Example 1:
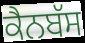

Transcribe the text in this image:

ਕੈਨਬੱਸ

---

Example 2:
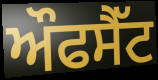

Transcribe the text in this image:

ਔਫਸੈੱਟ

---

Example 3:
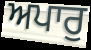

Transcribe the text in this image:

ਅਪਾਰੁ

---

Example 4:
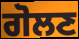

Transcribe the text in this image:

ਗੋਲਣ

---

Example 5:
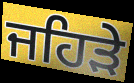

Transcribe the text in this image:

ਜਹਿੜੇ